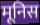
मूनिस